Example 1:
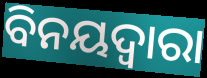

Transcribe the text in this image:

ବିନୟଦ୍ୱାରା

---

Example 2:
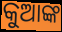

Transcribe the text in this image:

କୁଆଙ୍କ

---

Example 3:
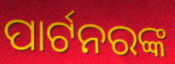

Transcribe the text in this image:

ପାର୍ଟନରଙ୍କ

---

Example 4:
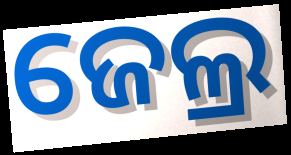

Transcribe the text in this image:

ଜେଲ୍ର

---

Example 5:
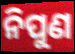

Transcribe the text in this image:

ନିପୁଣ